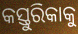
କସ୍ତୁରିକାକୁ